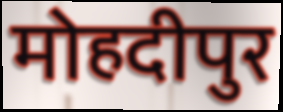
मोहदीपुर